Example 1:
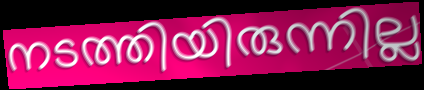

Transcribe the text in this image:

നടത്തിയിരുന്നില്ല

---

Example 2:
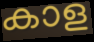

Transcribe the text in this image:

കാള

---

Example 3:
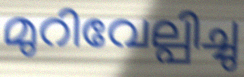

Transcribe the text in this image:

മുറിവേല്പിച്ചു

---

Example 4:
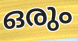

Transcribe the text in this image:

ഒരും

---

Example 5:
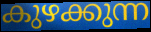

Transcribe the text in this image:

കുഴക്കുന്ന